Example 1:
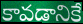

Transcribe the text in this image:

కావడానికే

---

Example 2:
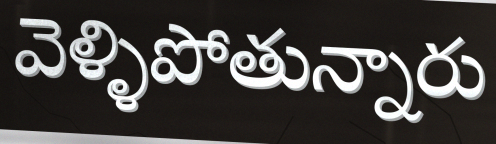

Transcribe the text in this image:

వెళ్ళిపోతున్నారు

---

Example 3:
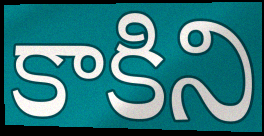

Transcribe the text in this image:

కాకిని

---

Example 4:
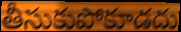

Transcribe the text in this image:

తీసుకుపోకూడదు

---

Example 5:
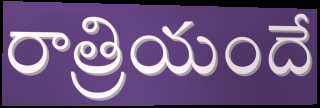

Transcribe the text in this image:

రాత్రియందే